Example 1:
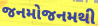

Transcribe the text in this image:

જનમોજનમથી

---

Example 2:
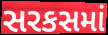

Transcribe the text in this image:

સરકસમાં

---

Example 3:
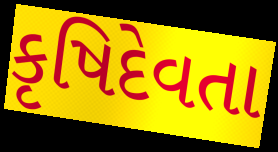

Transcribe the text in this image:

કૃષિદેવતા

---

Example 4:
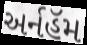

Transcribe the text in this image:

અર્નહૅમ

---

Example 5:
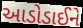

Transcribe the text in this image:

આડોડાઈને